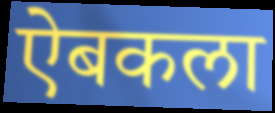
ऐबकला